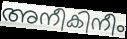
അനീകിനീം